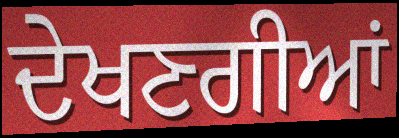
ਦੇਖਣਗੀਆਂ